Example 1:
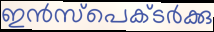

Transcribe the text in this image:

ഇൻസ്പെക്ടർക്കു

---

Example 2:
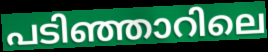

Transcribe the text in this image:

പടിഞ്ഞാറിലെ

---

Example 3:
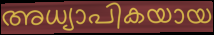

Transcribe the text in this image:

അധ്യാപികയായ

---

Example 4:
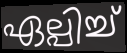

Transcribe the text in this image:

ഏല്പിച്ച്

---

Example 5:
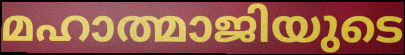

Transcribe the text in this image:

മഹാത്മാജിയുടെ